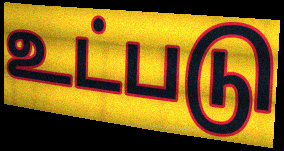
உட்படு